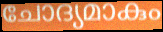
ചോദ്യമാകും